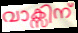
വാക്സിന്